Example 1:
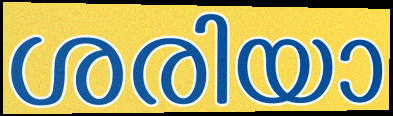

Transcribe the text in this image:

ശരിയാ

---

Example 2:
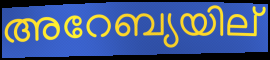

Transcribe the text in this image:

അറേബ്യയില്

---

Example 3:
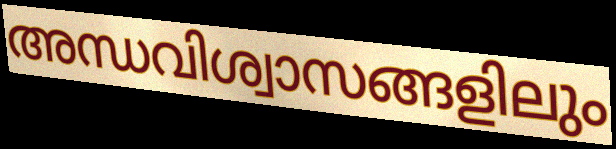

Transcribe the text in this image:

അന്ധവിശ്വാസങ്ങളിലും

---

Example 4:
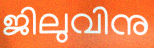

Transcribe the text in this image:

ജിലുവിനു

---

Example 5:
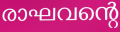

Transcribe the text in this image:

രാഘവന്റെ